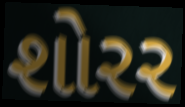
શોરર